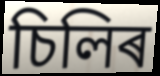
চিলিৰ